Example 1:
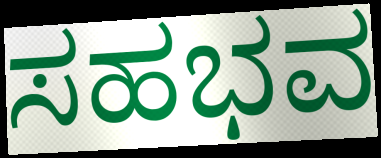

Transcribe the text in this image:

ಸಹಭವ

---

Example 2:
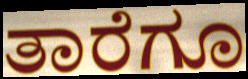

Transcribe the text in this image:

ತಾರೆಗೂ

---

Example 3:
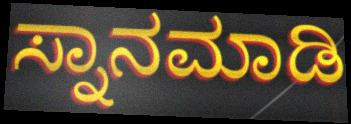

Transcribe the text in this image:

ಸ್ನಾನಮಾಡಿ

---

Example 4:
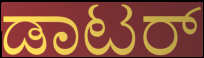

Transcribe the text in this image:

ಡಾಟರ್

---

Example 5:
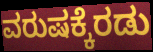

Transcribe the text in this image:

ವರುಷಕ್ಕೆರಡು